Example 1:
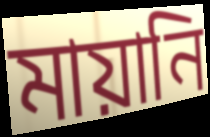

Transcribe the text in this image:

মায়ানি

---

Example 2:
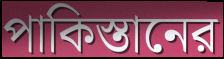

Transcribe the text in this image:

পাকিস্তানের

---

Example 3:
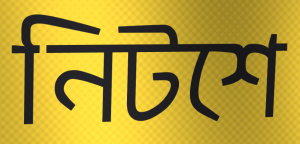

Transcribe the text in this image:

নিটশে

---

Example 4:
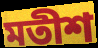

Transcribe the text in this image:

মতীশ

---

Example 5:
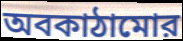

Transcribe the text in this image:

অবকাঠামোর